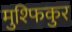
मुश्फिकुर